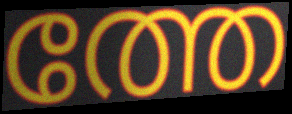
ത്തേ